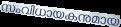
സംവിധായകനുമായ